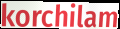
korchilam